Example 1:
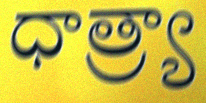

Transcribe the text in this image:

ధాత్ర్యా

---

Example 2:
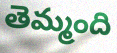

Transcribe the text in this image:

తెమ్మంది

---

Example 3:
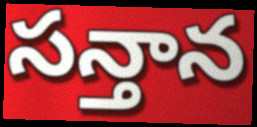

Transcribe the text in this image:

సన్తాన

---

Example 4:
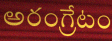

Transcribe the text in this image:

అరంగ్రేటం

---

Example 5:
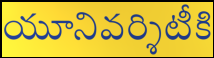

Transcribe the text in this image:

యూనివర్శిటీకి